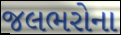
જલભરોના